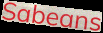
Sabeans